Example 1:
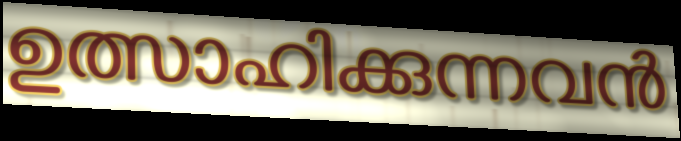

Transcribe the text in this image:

ഉത്സാഹിക്കുന്നവൻ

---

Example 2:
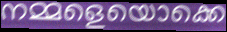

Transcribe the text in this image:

നമ്മളെയൊക്കെ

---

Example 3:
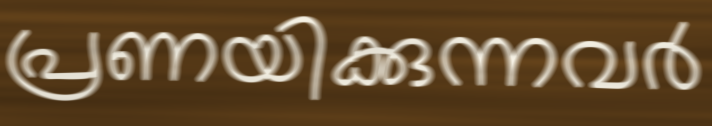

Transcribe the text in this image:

പ്രണയിക്കുന്നവർ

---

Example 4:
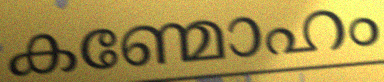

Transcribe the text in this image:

കണ്മോഹം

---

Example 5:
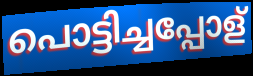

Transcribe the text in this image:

പൊട്ടിച്ചപ്പോള്